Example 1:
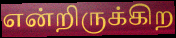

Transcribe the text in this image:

என்றிருக்கிற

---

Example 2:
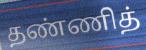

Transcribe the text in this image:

தண்ணித்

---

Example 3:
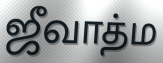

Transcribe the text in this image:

ஜீவாத்ம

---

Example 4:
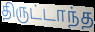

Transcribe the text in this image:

திருட்டாந்த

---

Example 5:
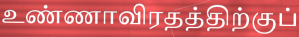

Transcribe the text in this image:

உண்ணாவிரதத்திற்குப்